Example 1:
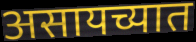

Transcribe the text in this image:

असायच्यात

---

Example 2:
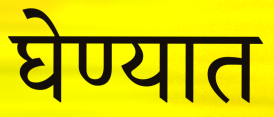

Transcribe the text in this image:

घेण्यात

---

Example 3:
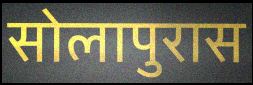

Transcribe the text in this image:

सोलापुरास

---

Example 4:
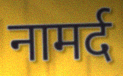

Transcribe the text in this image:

नामर्द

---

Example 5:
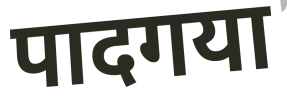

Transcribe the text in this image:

पादगया